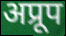
अप्रूप